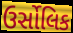
ઉર્સોલિક